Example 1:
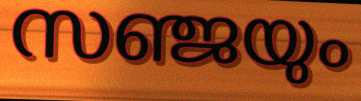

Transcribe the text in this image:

സഞ്ജയും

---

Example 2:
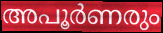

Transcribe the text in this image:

അപൂർണരും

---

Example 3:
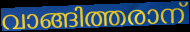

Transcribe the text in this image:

വാങ്ങിത്തരാന്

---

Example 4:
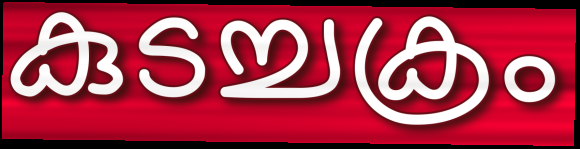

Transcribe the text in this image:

കുടച്ചക്രം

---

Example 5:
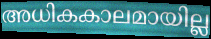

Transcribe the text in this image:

അധികകാലമായില്ല